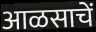
आळसाचें